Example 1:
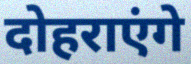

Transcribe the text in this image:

दोहराएंगे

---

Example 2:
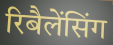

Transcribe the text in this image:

रिबैलेंसिंग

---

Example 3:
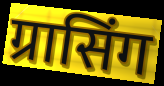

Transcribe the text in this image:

ग्रासिंग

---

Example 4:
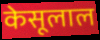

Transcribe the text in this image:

केसूलाल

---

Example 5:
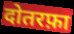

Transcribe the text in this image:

दोतरफ़ा